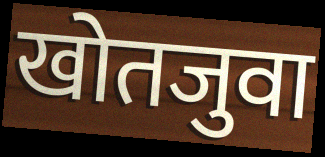
खोतजुवा